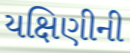
યક્ષિણીની